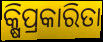
କ୍ଷିପ୍ରକାରିତା